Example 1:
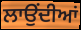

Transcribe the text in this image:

ਲਾਉਂਦੀਆਂ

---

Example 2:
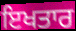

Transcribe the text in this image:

ਇਖਤਾਰ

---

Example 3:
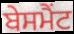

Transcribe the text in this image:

ਬੇਸਮੈਂਟ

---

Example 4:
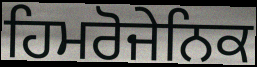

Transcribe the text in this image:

ਹਿਮਰੋਜੇਨਿਕ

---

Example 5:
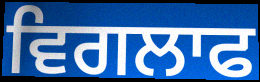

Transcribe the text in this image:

ਵਿਗਲਾਫ